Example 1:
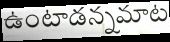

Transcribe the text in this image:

ఉంటాడన్నమాట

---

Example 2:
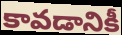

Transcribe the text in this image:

కావడానికీ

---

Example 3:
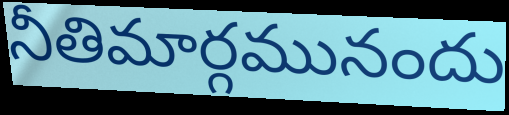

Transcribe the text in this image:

నీతిమార్గమునందు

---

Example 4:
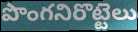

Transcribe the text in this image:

పొంగనిరొట్టెలు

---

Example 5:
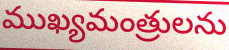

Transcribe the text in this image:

ముఖ్యమంత్రులను